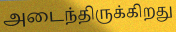
அடைந்திருக்கிறது